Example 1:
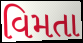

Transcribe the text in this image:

વિમતા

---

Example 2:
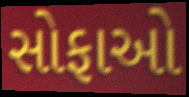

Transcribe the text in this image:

સોફાઓ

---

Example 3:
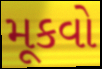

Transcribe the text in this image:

મૂકવો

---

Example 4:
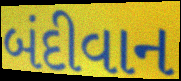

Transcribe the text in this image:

બંદીવાન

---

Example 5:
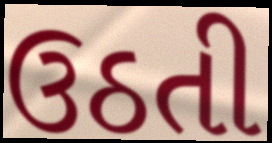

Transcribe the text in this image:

ઉઠતી